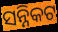
ସନ୍ନିକଟ